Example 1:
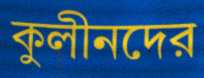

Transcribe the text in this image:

কুলীনদের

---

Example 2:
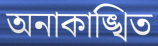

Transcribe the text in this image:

অনাকাঙ্খিত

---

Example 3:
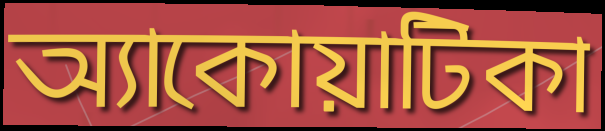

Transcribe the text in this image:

অ্যাকোয়াটিকা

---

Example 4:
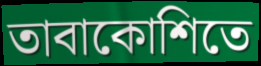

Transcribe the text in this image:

তাবাকোশিতে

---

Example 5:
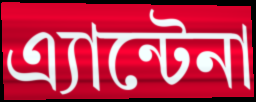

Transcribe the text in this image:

এ্যান্টেনা